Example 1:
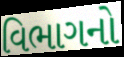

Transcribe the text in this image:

વિભાગનો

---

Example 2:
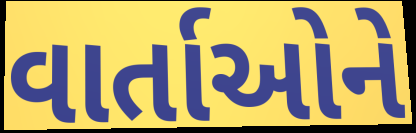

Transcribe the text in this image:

વાર્તાઓને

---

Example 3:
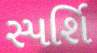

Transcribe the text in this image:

સ્પર્શિ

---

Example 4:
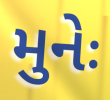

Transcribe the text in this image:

મુનેઃ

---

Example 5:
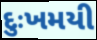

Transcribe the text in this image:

દુઃખમયી